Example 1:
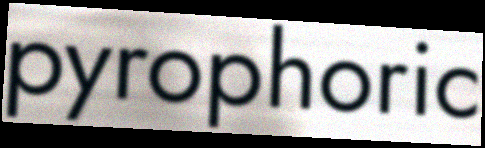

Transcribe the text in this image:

pyrophoric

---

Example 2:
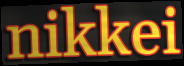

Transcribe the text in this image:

nikkei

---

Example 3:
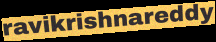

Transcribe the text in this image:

ravikrishnareddy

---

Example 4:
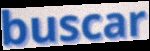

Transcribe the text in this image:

buscar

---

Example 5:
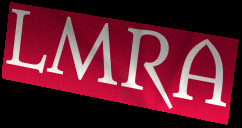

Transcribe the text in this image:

LMRA